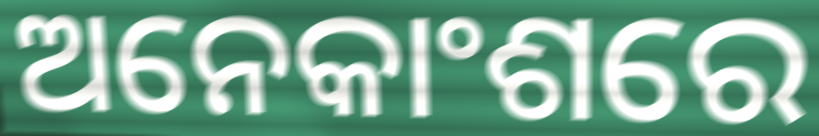
ଅନେକାଂଶରେ